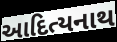
આદિત્યનાથ